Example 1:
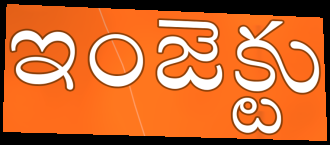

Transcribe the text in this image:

ఇంజెక్టు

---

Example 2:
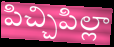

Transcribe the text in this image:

పిచ్చిపిల్లా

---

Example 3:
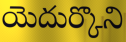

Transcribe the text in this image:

యెదుర్కొని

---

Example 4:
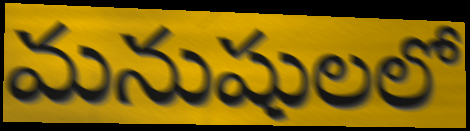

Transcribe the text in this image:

మనుషులలో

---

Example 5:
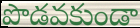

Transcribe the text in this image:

పొడవకుండా